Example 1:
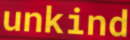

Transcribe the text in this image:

unkind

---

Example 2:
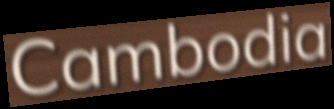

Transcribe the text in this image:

Cambodia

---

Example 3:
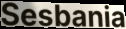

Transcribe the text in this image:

Sesbania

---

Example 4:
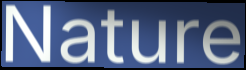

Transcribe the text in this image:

Nature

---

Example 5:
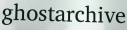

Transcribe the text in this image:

ghostarchive